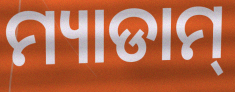
ମ୍ୟାଡାମ୍